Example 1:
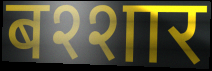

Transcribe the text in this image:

बश्शार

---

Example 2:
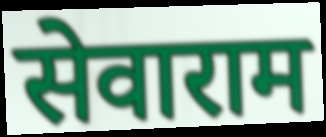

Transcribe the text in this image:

सेवाराम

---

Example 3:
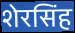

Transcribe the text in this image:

शेरसिंह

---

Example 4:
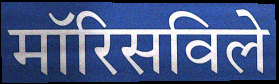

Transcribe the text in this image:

मॉरिसविले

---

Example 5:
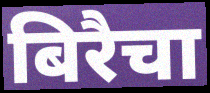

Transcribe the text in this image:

बिरैचा